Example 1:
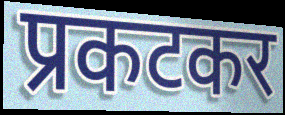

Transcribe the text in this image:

प्रकटकर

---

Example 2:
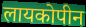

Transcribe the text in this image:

लायकोपीन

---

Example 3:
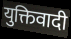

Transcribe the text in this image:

युक्तिवादी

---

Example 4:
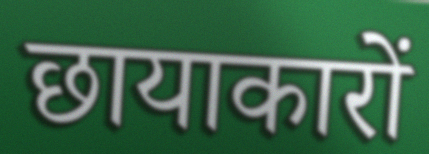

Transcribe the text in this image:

छायाकारों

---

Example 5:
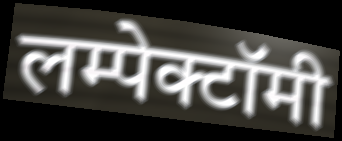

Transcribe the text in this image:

लम्पेक्टॉमी